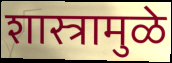
शास्त्रामुळे